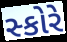
સ્કોરે